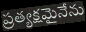
ప్రత్యక్షమైనేను